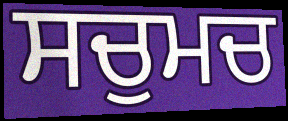
ਸਚੁਮਚ